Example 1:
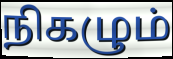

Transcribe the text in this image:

நிகழும்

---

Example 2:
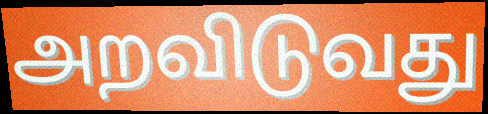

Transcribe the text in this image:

அறவிடுவது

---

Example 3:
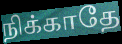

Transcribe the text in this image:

நிக்காதே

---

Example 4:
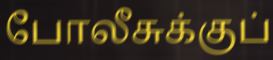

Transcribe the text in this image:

போலீசுக்குப்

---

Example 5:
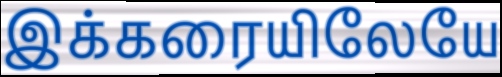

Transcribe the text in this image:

இக்கரையிலேயே